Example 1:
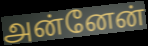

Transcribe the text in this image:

அன்னேன்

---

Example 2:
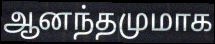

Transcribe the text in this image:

ஆனந்தமுமாக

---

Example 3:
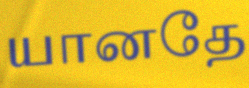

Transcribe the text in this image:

யானதே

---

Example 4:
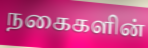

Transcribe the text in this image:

நகைகளின்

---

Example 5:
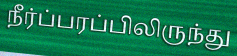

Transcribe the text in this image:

நீர்ப்பரப்பிலிருந்து